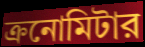
ক্রনোমিটার